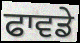
ਫਾਵਡੇ